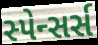
સ્પેન્સર્સ